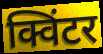
क्विंटर